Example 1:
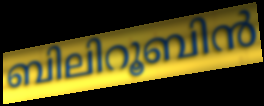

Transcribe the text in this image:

ബിലിറൂബിൻ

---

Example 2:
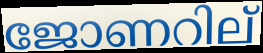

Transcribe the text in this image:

ജോണറില്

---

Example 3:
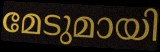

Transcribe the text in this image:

മേടുമായി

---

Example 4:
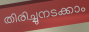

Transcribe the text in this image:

തിരിച്ചുനടക്കാം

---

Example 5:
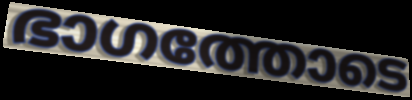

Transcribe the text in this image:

ഭാഗത്തോടെ